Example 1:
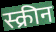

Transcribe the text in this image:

स्क्रीन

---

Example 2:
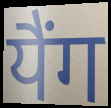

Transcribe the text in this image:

यैंग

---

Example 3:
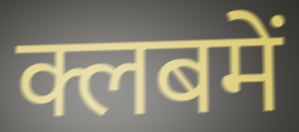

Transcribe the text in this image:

क्लबमें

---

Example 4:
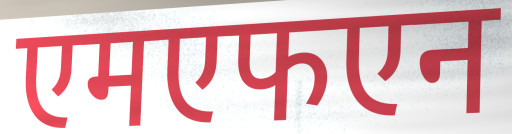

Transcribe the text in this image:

एमएफएन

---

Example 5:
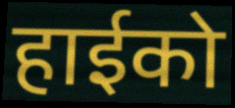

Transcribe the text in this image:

हाईको